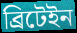
ব্ৰিটেইন